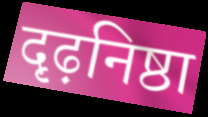
दृढ़निष्ठा